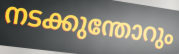
നടക്കുന്തോറും